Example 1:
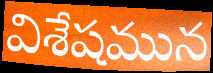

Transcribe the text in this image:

విశేషమున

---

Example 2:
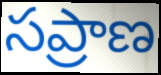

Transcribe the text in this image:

సప్రాణ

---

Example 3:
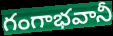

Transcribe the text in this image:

గంగాభవానీ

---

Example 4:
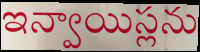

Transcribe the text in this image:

ఇన్వాయిస్లను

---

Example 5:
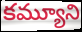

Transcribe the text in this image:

కమ్యూని